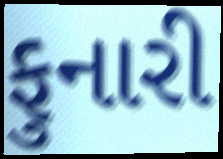
ફુનારી